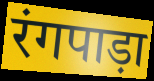
रंगपाड़ा